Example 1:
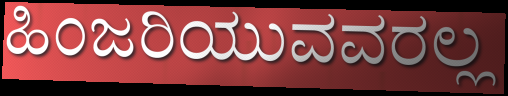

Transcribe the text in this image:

ಹಿಂಜರಿಯುವವರಲ್ಲ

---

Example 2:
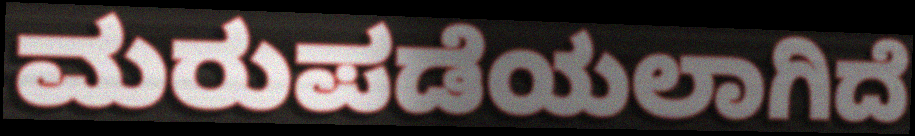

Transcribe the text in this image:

ಮರುಪಡೆಯಲಾಗಿದೆ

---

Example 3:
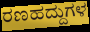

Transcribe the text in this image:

ರಣಹದ್ದುಗಳ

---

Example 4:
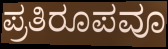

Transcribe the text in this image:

ಪ್ರತಿರೂಪವೂ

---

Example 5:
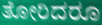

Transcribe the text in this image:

ತೋರಿದರೂ